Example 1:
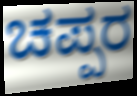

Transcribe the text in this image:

ಚಪ್ಪರ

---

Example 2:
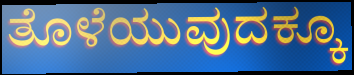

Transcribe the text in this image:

ತೊಳೆಯುವುದಕ್ಕೂ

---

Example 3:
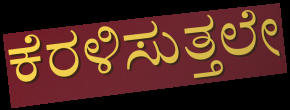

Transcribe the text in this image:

ಕೆರಳಿಸುತ್ತಲೇ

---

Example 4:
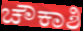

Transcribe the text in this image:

ಚೌಕಾಶಿ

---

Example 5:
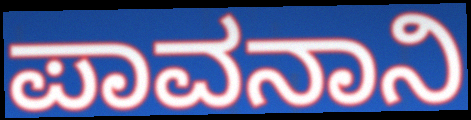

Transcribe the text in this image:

ಪಾವನಾನಿ